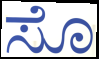
ಸೊ